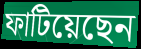
ফাটিয়েছেন